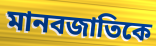
মানবজাতিকে